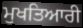
ਮੁਖਤਿਆਰੀ